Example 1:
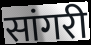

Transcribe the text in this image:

सांगरी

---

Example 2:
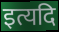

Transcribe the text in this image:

इत्यदि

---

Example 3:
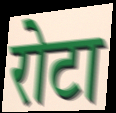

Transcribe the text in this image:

रोटा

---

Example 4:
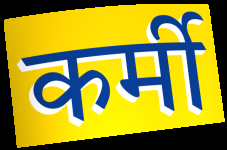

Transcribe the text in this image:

कर्मी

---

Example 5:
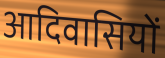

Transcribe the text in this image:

आदिवासियों